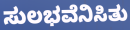
ಸುಲಭವೆನಿಸಿತು